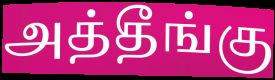
அத்தீங்கு